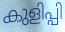
കുളിപ്പി